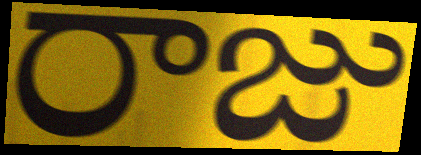
రాజు